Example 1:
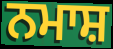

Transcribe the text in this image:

ਨਮਾਸ਼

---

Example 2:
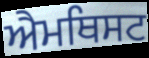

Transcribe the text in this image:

ਐਮਥਿਸਟ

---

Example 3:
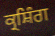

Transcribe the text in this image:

ਕ੍ਰਸ਼ਿੰਗ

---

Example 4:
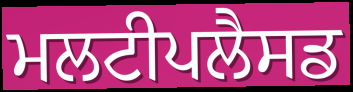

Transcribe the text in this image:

ਮਲਟੀਪਲੈਸਡ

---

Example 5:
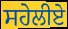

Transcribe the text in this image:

ਸਹੇਲੀਏ